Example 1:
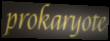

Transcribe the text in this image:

prokaryote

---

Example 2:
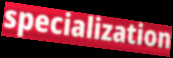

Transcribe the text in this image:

specialization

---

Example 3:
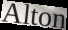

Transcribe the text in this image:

Alton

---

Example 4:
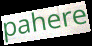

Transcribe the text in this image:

pahere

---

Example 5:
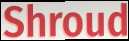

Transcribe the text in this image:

Shroud